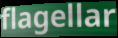
flagellar